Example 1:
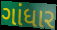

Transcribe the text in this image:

ગાંધાર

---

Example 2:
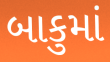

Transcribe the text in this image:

બાકુમાં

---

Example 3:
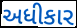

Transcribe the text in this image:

અધીકાર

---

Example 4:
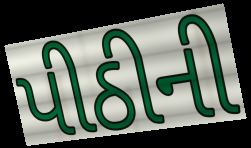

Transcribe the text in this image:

પીઠીની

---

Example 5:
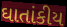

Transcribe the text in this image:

ઘાતાંકીય